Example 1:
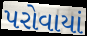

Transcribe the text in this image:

પરોવાયાં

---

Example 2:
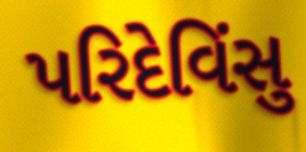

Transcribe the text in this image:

પરિદેવિંસુ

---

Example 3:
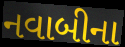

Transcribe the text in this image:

નવાબીના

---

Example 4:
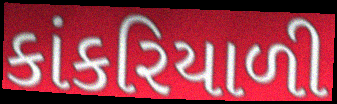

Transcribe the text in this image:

કાંકરિયાળી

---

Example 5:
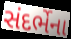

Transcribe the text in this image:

સંદર્ભેના